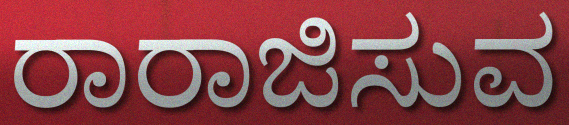
ರಾರಾಜಿಸುವ